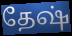
தேஷ்